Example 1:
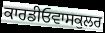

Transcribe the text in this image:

ਕਾਰਡੀਓਵਾਸਕੁਲਰ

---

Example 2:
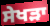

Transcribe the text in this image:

ਸੇਖੜਾ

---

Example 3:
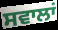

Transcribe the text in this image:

ਸਵਾਲਾਂ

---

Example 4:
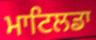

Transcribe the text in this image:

ਮਾਟਿਲਡਾ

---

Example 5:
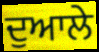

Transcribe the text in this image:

ਦੁਆਲੇ